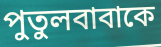
পুতুলবাবাকে